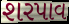
શરપાવ